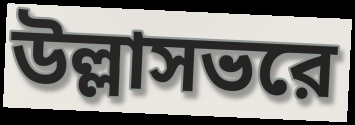
উল্লাসভরে